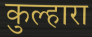
कुल्हारा